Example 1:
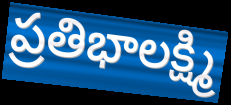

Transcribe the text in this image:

ప్రతిభాలక్ష్మి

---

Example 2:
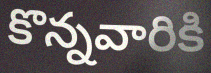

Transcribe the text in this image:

కొన్నవారికి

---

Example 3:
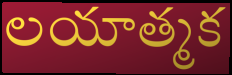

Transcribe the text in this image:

లయాత్మక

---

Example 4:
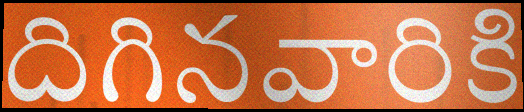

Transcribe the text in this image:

దిగినవారికి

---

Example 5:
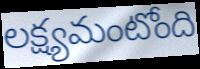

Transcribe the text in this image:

లక్ష్యమంటోంది